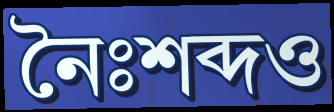
নৈঃশব্দও